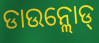
ଡାଉନ୍ଲୋଡ୍